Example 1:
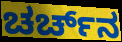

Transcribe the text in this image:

ಚರ್ಚ್‌ನ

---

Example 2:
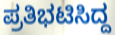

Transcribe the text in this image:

ಪ್ರತಿಭಟಿಸಿದ್ದ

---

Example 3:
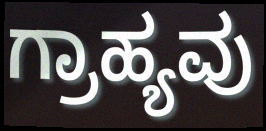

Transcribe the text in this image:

ಗ್ರಾಹ್ಯವು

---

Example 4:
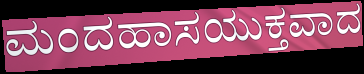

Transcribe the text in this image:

ಮಂದಹಾಸಯುಕ್ತವಾದ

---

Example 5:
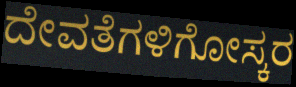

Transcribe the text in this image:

ದೇವತೆಗಳಿಗೋಸ್ಕರ